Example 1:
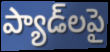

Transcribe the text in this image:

ప్యాడ్‌లపై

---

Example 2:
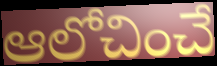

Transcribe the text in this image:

ఆలోచించే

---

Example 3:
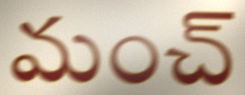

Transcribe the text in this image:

మంచ్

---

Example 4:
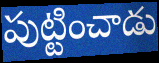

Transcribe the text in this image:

పుట్టించాడు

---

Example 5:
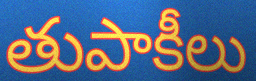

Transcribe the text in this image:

తుపాకీలు